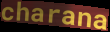
charana